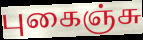
புகைஞ்சு